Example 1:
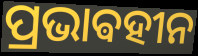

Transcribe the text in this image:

ପ୍ରଭାଵହୀନ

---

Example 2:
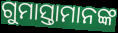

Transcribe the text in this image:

ଗୁମାସ୍ତାମାନଙ୍କ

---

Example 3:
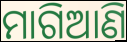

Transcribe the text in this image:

ମାଗିଆଣି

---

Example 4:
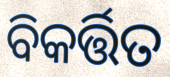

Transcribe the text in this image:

ବିକର୍ତ୍ତିତ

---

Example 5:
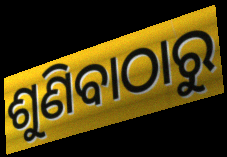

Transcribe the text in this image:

ଶୁଣିବାଠାରୁ